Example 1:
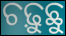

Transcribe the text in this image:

ଚଢ଼ୁଛୁ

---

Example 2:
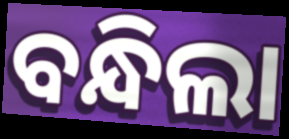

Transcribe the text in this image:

ବନ୍ଧିଲା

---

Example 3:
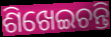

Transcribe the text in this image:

ଶିଖେଇଚନ୍ତି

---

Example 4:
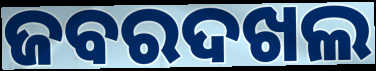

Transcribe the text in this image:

ଜବରଦଖଲ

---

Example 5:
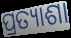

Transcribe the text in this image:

ପ୍ରତ୍ୟାଶା